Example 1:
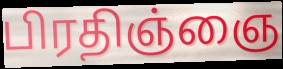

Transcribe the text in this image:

பிரதிஞ்ஞை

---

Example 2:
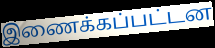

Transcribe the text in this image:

இணைக்கப்பட்டன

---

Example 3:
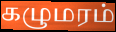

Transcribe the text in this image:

கழுமரம்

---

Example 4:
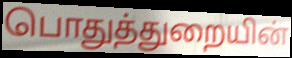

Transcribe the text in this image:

பொதுத்துறையின்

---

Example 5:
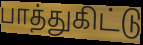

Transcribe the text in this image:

பாத்துகிட்டு